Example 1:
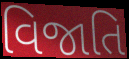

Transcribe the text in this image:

વિજાતિ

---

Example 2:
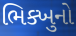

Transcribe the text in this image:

ભિક્ખુનો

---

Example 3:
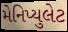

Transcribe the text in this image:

મેનિપ્યુલેટ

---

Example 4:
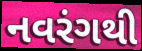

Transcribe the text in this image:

નવરંગથી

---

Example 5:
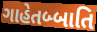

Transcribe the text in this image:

ગાહેતબ્બાતિ